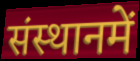
संस्थानमें